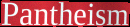
Pantheism